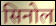
सिनोल